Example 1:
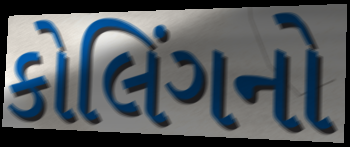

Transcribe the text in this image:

કોલિંગનો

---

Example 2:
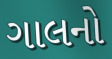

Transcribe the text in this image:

ગાલનો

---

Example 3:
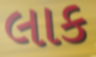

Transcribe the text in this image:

લાક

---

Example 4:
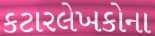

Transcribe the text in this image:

કટારલેખકોના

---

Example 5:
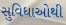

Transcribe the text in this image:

સુવિધાઓથી